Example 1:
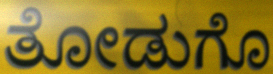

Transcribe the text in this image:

ತೋಡುಗೊ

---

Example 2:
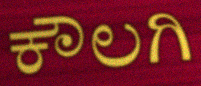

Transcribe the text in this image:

ಕೌಲಗಿ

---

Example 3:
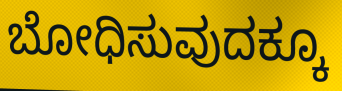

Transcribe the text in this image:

ಬೋಧಿಸುವುದಕ್ಕೂ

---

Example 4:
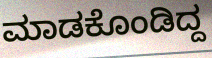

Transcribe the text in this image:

ಮಾಡಕೊಂಡಿದ್ದ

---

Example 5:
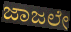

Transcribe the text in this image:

ಜಾಜಲೇ